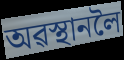
অৱস্থানলৈ